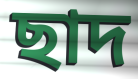
ছাদ